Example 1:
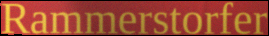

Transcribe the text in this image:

Rammerstorfer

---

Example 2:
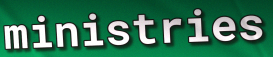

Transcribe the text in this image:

ministries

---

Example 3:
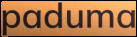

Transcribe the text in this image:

paduma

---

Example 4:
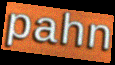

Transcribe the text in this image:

pahn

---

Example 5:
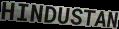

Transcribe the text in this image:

HINDUSTAN